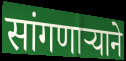
सांगणार्‍याने